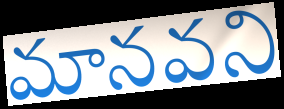
మానవని